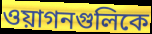
ওয়াগনগুলিকে